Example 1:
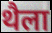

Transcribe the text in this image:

थैला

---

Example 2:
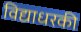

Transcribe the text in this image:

विद्याधरकी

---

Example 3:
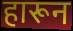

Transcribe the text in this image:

हारून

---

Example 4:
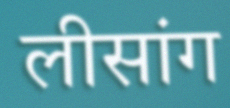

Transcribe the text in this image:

लीसांग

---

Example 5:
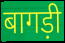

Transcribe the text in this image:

बागड़ी